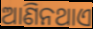
ଆଣିନଥାଏ